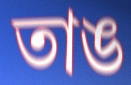
তাঙ